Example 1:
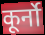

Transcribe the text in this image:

कूर्नो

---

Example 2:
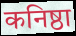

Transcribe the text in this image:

कनिष्ठा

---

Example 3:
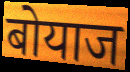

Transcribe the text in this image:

बोयाज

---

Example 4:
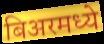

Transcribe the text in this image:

बिअरमध्ये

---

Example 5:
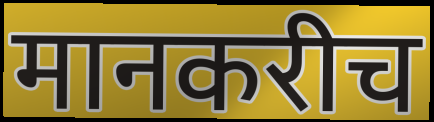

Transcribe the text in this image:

मानकरीच